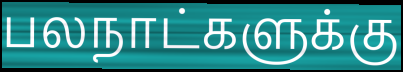
பலநாட்களுக்கு